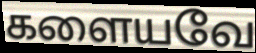
களையவே